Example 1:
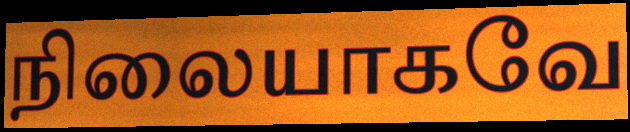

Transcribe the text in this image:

நிலையாகவே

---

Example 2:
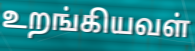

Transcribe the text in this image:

உறங்கியவள்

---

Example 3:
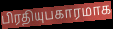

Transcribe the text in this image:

பிரதியுபகாரமாக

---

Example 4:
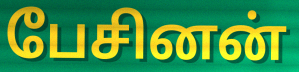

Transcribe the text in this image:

பேசினன்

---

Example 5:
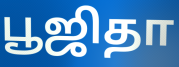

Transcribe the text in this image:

பூஜிதா